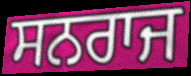
ਸਨਰਾਜ